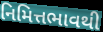
નિમિત્તભાવથી